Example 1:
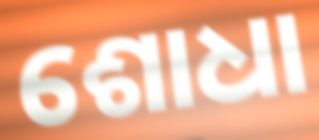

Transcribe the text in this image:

ଶୋଧା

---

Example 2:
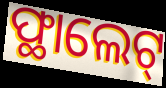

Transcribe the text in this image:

ଫ୍ଥାଲେଟ୍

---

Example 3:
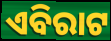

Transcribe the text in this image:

ଏବିରାଟ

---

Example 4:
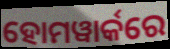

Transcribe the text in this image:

ହୋମୱାର୍କରେ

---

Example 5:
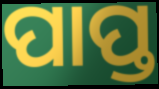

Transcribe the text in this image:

ପାପ୍ତ